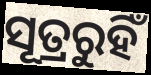
ସୂତ୍ରରୁହିଁ